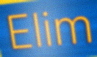
Elim